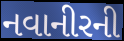
નવાનીરની